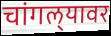
चांगल्यावर